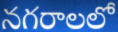
నగరాలలో